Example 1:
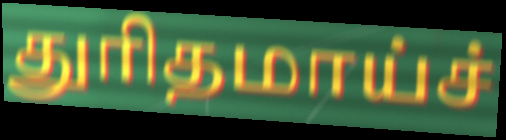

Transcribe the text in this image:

துரிதமாய்ச்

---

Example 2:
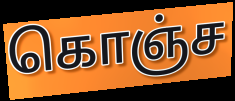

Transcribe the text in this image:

கொஞ்ச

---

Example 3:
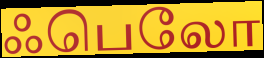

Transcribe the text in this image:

ஃபெலோ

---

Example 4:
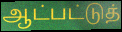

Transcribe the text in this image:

ஆட்பட்டுத்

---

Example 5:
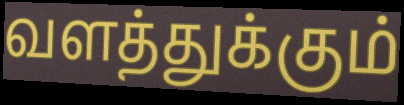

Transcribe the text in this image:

வளத்துக்கும்